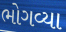
ભોગવ્યા